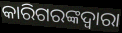
କାରିଗରଙ୍କଦ୍ୱାରା